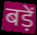
बड़ें